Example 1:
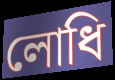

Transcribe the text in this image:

লোধি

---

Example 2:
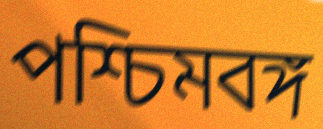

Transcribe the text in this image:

পশ্চিমবঙ্গ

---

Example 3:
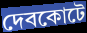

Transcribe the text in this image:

দেবকোটে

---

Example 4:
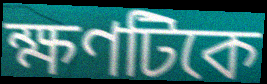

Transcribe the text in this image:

ক্ষণটিকে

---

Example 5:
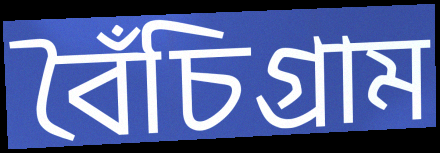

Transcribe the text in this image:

বৈঁচিগ্রাম